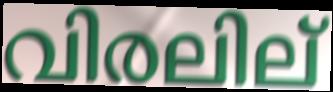
വിരലില്